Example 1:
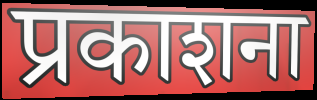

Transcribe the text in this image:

प्रकाशना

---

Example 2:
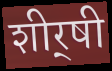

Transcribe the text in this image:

शीर्षी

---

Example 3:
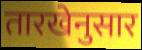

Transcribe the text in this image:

तारखेनुसार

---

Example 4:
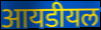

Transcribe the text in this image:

आयडीयल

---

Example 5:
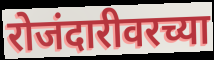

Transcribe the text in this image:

रोजंदारीवरच्या